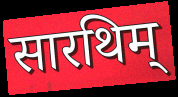
सारथिम्